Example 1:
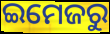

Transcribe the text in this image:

ଇମେଜରୁ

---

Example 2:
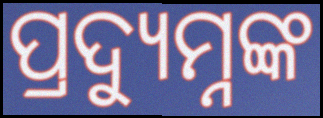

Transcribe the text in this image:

ପ୍ରଦ୍ୟୁମ୍ନଙ୍କ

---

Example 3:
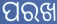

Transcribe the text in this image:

ପରଖ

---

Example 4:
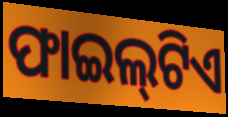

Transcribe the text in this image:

ଫାଇଲ୍‌ଟିଏ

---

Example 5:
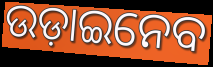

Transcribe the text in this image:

ଉଡ଼ାଇନେବ